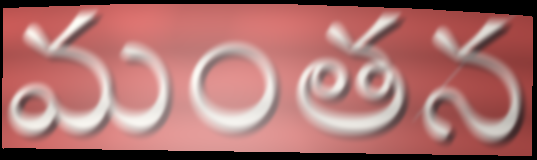
మంతన